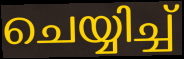
ചെയ്യിച്ച്